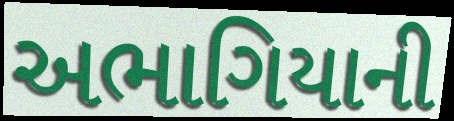
અભાગિયાની